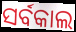
ସର୍ବକାଲ